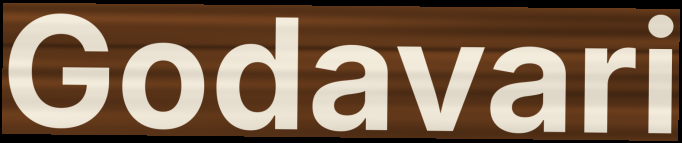
Godavari